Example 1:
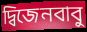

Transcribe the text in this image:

দ্বিজেনবাবু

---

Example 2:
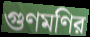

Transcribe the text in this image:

গুণমণির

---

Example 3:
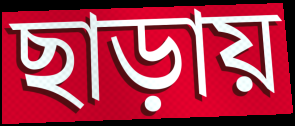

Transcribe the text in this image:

ছাড়ায়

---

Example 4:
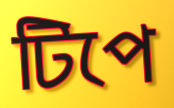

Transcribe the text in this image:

টিপে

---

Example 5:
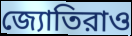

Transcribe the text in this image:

জ্যোতিরাও